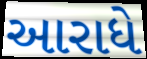
આરાધે